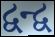
દ્વન્દ્વ